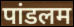
पांडलम